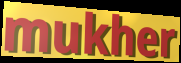
mukher